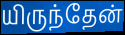
யிருந்தேன்